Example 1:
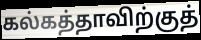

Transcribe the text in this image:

கல்கத்தாவிற்குத்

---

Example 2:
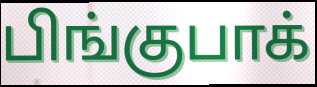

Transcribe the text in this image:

பிங்குபாக்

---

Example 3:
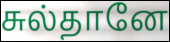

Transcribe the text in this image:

சுல்தானே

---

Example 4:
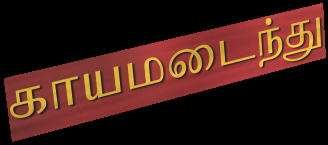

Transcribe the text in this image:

காயமடைந்து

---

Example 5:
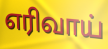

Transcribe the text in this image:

எரிவாய்